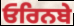
ਓਰਿਨਬੇ